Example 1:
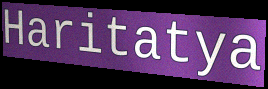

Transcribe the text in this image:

Haritatya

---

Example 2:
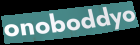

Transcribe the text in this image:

onoboddyo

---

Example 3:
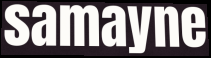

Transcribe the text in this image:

samayne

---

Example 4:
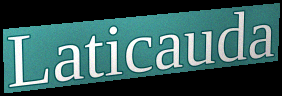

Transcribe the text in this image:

Laticauda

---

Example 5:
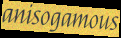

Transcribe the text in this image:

anisogamous